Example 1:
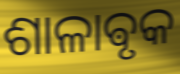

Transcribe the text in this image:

ଶାଳାଵୃକ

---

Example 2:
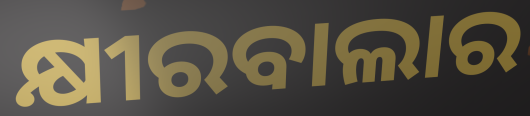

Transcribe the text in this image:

କ୍ଷୀରବାଲାର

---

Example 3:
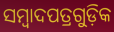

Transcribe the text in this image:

ସମ୍ୱାଦପତ୍ରଗୁଡ଼ିକ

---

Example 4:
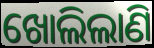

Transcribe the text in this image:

ଖୋଲିଲାଣି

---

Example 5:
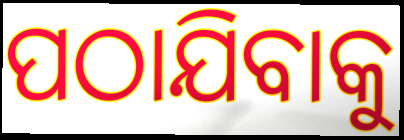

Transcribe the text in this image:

ପଠାଯିବାକୁ